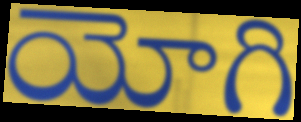
యోగి